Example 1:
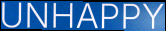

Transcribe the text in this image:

UNHAPPY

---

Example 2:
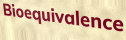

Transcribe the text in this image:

Bioequivalence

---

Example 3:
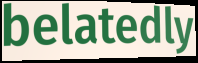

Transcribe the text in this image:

belatedly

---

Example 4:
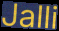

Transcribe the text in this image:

Jalli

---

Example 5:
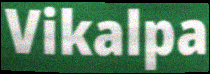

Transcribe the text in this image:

Vikalpa